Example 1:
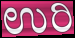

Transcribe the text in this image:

ಉರಿ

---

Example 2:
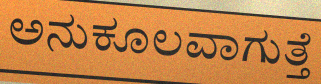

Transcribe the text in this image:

ಅನುಕೂಲವಾಗುತ್ತೆ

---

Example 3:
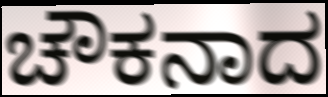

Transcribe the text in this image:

ಚೌಕನಾದ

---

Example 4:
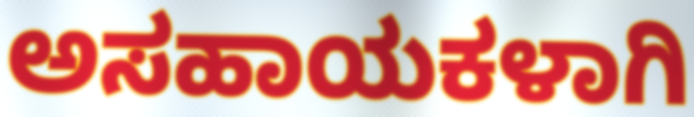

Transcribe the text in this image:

ಅಸಹಾಯಕಳಾಗಿ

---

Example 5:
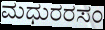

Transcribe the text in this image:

ಮಧುರರಸಂ